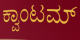
ಕ್ವಾಂಟಮ್